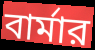
বার্মার